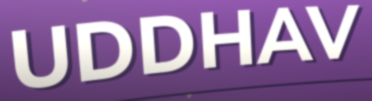
UDDHAV